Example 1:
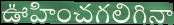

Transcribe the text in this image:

ఊహించగలిగినా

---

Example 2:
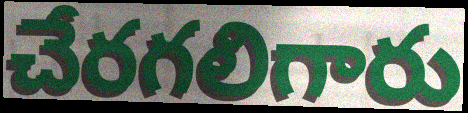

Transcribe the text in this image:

చేరగలిగారు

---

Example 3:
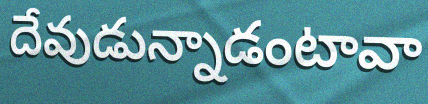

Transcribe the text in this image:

దేవుడున్నాడంటావా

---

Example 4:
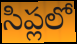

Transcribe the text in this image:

సిప్లలో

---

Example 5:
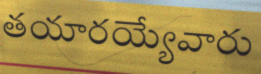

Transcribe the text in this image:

తయారయ్యేవారు